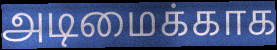
அடிமைக்காக